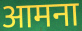
आमना